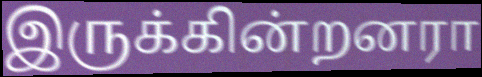
இருக்கின்றனரா